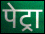
पेट्रा